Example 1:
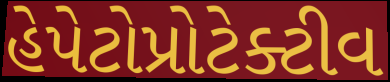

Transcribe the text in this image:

હેપેટોપ્રોટેક્ટીવ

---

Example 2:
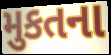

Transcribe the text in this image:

મુકતના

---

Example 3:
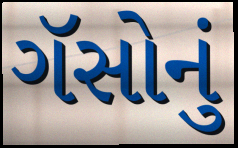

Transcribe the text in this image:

ગૅસોનું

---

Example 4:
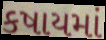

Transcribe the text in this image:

કષાયમાં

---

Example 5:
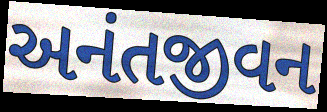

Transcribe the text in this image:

અનંતજીવન